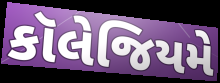
કૉલેજિયમે